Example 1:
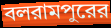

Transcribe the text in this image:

বলরামপুরের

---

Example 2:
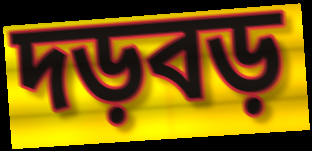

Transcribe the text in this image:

দড়বড়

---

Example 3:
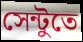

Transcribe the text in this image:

সেন্টুতে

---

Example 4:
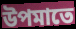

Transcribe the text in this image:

উপমাতে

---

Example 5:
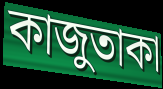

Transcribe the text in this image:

কাজুতাকা